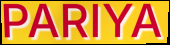
PARIYA